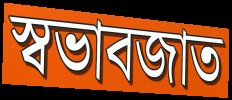
স্বভাবজাত